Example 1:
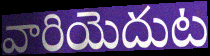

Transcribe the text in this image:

వారియెదుట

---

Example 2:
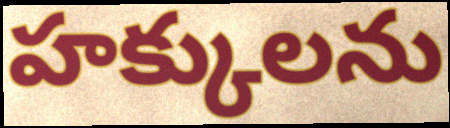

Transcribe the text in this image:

హక్కులను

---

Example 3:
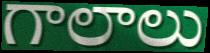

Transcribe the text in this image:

గాలాలు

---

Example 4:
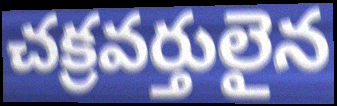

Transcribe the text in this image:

చక్రవర్తులైన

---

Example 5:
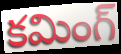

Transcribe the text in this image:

కమింగ్